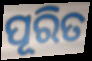
ପୂରିତ